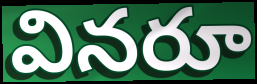
వినరూ